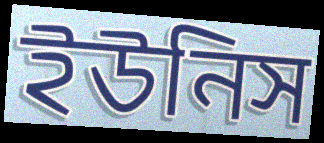
ইউনিস